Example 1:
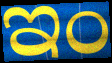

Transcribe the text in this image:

ఇం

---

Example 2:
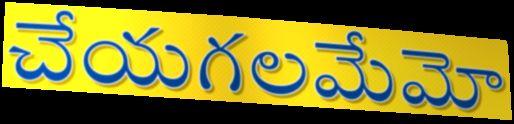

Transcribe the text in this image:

చేయగలమేమో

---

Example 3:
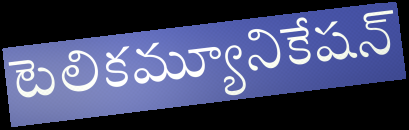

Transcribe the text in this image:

టెలికమ్యూనికేషన్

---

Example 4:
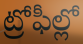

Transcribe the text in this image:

ట్రోఫీల్లో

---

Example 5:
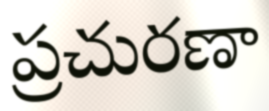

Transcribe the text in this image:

ప్రచురణా